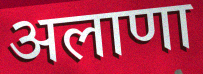
अलाणा